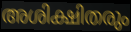
അശിക്ഷിതരും